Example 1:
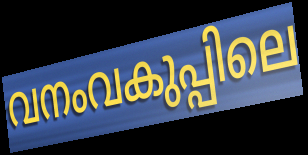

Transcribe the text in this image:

വനംവകുപ്പിലെ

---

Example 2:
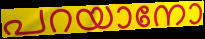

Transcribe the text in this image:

പറയാനോ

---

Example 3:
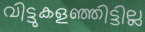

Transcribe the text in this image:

വിട്ടുകളഞ്ഞിട്ടില്ല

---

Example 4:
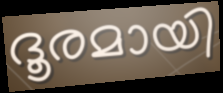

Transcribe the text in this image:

ദൂരമായി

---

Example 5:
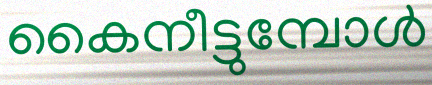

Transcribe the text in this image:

കൈനീട്ടുമ്പോൾ